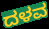
ದಳವ